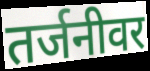
तर्जनीवर